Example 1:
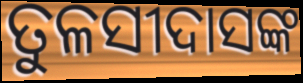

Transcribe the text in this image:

ତୁଳସୀଦାସଙ୍କ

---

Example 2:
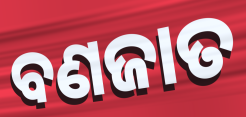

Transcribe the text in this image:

ବଣଜାତ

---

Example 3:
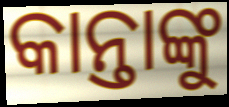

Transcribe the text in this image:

କାନ୍ତାଙ୍କୁ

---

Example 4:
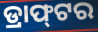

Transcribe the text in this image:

ଡ୍ରାଫ୍‌ଟର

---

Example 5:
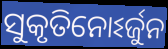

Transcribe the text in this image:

ସୁକୃତିନୋଽର୍ଜୁନ